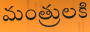
మంత్రులకి